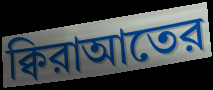
ক্বিরাআতের